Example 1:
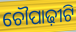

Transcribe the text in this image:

ଚୌପାଢ଼ୀଟି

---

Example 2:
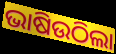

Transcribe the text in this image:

ଭାଷିଉଠିଲା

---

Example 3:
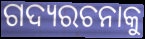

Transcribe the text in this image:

ଗଦ୍ୟରଚନାକୁ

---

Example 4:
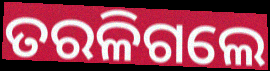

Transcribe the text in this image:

ତରଳିଗଲେ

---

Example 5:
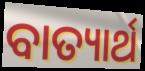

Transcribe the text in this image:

ବାତ୍ୟାର୍ଥ